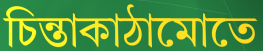
চিন্তাকাঠামোতে